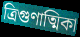
ত্রিগুণাত্মিকা